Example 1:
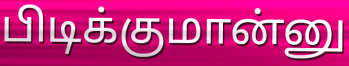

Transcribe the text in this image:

பிடிக்குமான்னு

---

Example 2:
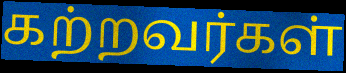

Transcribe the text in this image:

கற்றவர்கள்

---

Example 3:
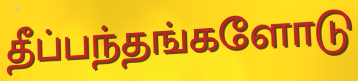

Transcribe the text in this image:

தீப்பந்தங்களோடு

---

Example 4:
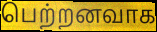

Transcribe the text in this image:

பெற்றனவாக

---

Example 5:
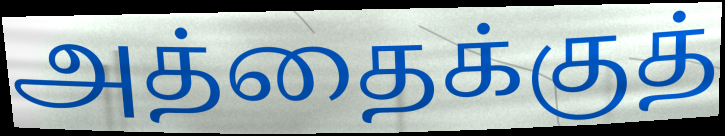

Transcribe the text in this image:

அத்தைக்குத்